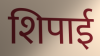
शिपाई